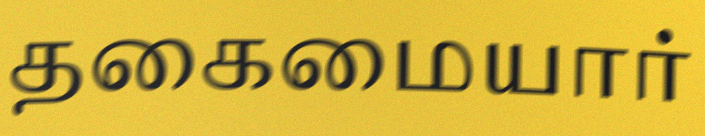
தகைமையார்